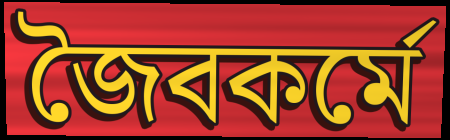
জৈবকর্মে